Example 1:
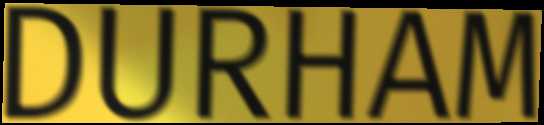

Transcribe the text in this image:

DURHAM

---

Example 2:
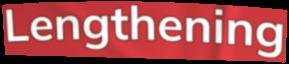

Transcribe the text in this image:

Lengthening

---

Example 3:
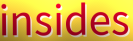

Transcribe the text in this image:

insides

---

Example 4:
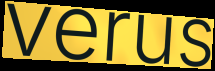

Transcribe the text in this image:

verus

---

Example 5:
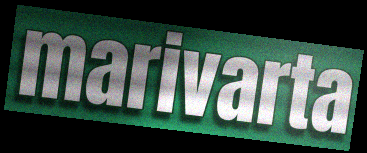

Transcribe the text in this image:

marivarta